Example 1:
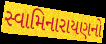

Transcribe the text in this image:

સ્વામિનારાયણનો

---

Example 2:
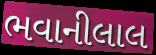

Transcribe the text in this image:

ભવાનીલાલ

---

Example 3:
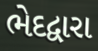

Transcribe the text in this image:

ભેદદ્વારા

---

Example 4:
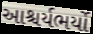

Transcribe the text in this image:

આશ્ચર્યભર્યો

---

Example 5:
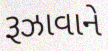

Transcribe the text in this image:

રૂઝાવાને